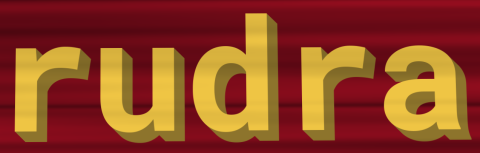
rudra